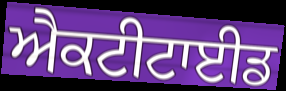
ਐਕਟੀਟਾਈਡ